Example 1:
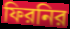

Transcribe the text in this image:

ফিরনির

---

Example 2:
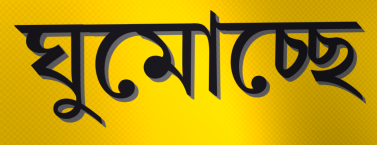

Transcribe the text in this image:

ঘুমোচ্ছে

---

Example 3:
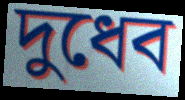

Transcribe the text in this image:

দুধেব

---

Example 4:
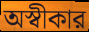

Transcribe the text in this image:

অস্বীকার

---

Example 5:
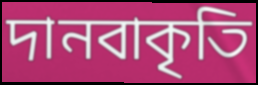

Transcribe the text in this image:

দানবাকৃতি